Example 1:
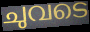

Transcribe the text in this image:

ചുവടെ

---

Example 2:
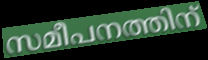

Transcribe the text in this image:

സമീപനത്തിന്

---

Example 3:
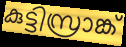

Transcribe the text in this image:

കുട്ടിസ്രാങ്ക്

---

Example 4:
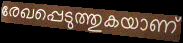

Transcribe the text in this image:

രേഖപ്പെടുത്തുകയാണ്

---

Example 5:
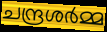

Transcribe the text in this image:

ചന്ദ്രശർമ്മ